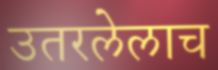
उतरलेलाच